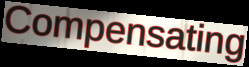
Compensating